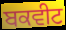
ਬਕਵੀਟ